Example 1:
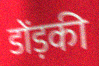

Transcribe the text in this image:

डोंड़की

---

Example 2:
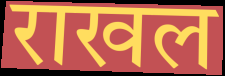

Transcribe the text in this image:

राखल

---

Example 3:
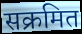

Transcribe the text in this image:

सक्रमित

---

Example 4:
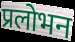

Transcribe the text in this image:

प्रलोभन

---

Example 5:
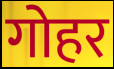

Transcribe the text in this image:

गोहर